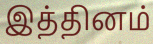
இத்தினம்